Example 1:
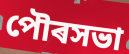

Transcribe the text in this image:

পৌৰসভা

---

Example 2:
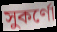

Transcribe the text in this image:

সুকৰ্ণো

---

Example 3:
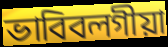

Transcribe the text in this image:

ভাবিবলগীয়া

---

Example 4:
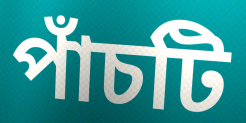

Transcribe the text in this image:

পাঁচটি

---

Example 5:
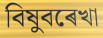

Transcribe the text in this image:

বিষুবৰেখা